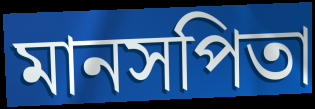
মানসপিতা